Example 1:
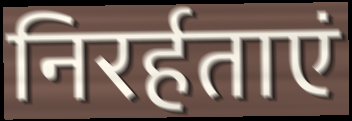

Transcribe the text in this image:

निरर्हताएं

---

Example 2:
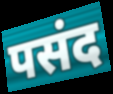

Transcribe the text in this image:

पसंद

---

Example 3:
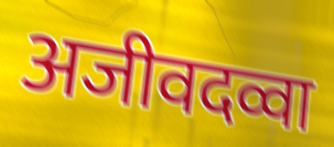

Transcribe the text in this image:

अजीवदव्वा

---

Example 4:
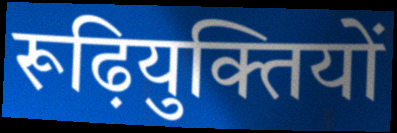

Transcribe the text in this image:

रूढ़ियुक्तियों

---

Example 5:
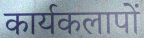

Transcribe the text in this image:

कार्यकलापों